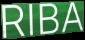
RIBA